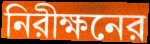
নিরীক্ষনের